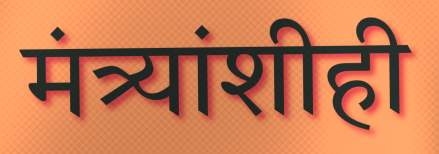
मंत्र्यांशीही